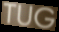
TUG